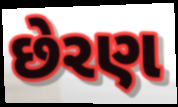
છેરણ